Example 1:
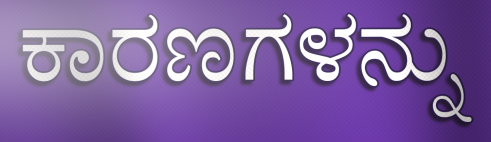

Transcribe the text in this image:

ಕಾರಣಗಳನ್ನು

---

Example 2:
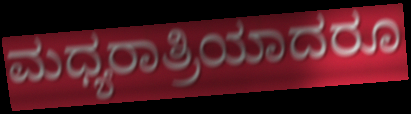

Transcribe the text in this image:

ಮಧ್ಯರಾತ್ರಿಯಾದರೂ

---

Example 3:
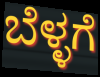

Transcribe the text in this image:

ಬೆಳ್ಳಗೆ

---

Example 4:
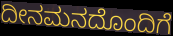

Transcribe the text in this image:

ದೀನಮನದೊಂದಿಗೆ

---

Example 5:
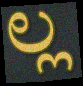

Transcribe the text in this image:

ಲ್ಲ